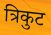
त्रिकुट